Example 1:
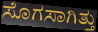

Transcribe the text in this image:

ಸೊಗಸಾಗಿತ್ತು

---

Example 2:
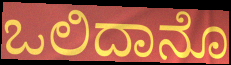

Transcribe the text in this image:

ಒಲಿದಾನೊ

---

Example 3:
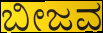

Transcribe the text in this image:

ಬೀಜವ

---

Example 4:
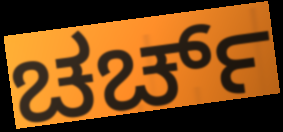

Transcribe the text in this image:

ಚರ್ಚ್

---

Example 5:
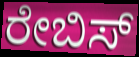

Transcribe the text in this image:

ರೇಬಿಸ್